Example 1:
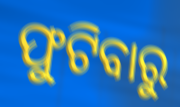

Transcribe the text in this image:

ଫୁଟିବାରୁ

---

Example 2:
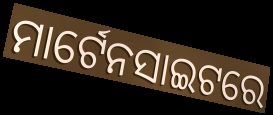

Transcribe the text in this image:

ମାର୍ଟେନସାଇଟରେ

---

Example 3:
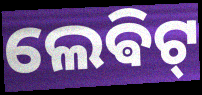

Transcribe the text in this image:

ଲେଵିଟ୍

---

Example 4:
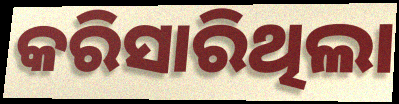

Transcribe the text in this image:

କରିସାରିଥିଲା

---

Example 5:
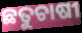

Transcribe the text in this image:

ଛତୁଚାଷୀ